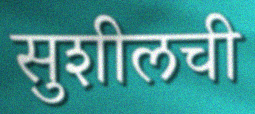
सुशीलची